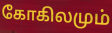
கோகிலமும்